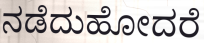
ನಡೆದುಹೋದರೆ